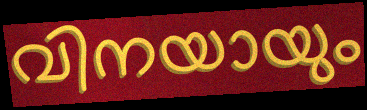
വിനയായും